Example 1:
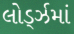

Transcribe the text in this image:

લોર્ડ્ઝમાં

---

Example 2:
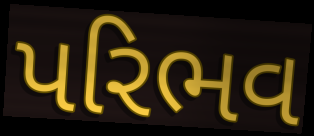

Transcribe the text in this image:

પરિભવ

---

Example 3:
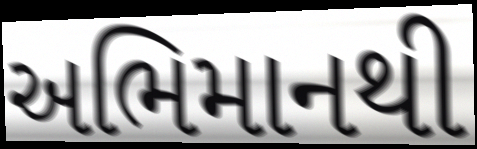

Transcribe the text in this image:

અભિમાનથી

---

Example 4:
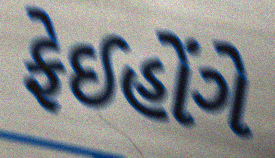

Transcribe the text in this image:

ફેઈહોંગે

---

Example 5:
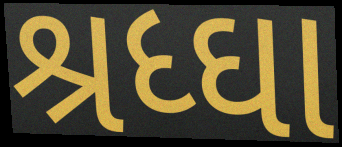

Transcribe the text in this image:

શ્રધ્ઘા